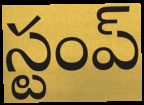
స్టంప్